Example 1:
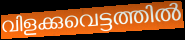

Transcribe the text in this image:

വിളക്കുവെട്ടത്തിൽ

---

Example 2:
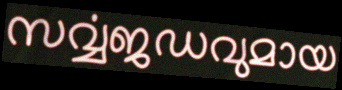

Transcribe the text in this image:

സൎവ്വജഡവുമായ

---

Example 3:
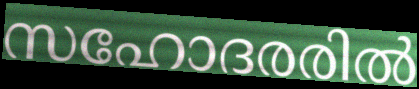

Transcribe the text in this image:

സഹോദരരിൽ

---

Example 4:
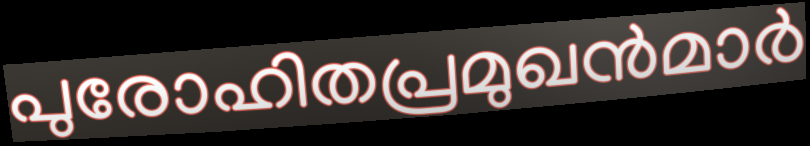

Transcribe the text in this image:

പുരോഹിതപ്രമുഖൻമാർ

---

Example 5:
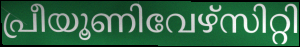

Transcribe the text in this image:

പ്രീയൂണിവേഴ്സിറ്റി